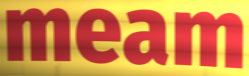
meam